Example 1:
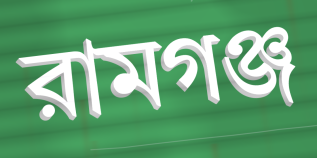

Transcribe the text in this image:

রামগঞ্জ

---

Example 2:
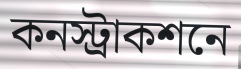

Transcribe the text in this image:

কনস্ট্রাকশনে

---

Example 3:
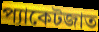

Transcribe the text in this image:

প্যাকেটজাত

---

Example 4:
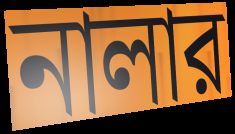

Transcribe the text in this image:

নালার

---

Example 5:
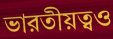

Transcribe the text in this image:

ভারতীয়ত্বও